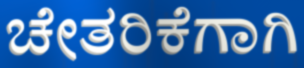
ಚೇತರಿಕೆಗಾಗಿ